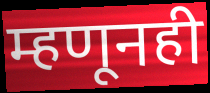
म्‍हणूनही